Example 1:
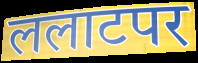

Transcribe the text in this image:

ललाटपर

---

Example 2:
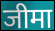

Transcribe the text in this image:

जीमा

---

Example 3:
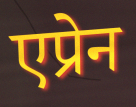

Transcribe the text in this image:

एप्रेन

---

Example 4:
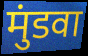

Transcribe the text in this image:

मुंडवा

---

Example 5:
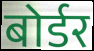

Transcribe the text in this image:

बोर्डर